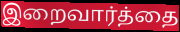
இறைவார்த்தை